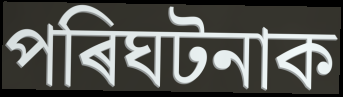
পৰিঘটনাক